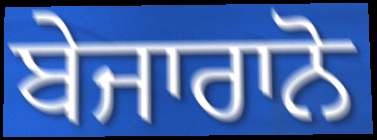
ਬੇਜਾਰਾਨੋ